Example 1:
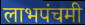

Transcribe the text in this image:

लाभपंचमी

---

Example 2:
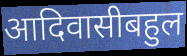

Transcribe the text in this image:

आदिवासीबहुल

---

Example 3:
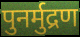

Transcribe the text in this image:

पुनर्मुद्रण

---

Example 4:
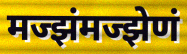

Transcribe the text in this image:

मज्झंमज्झेणं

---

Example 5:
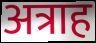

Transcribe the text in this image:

अत्राह